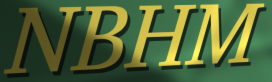
NBHM